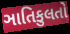
ઞાતિકુલતો